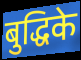
बुद्धिके